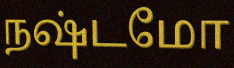
நஷ்டமோ